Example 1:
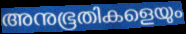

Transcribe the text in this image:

അനുഭൂതികളെയും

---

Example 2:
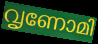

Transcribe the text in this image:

വൃണോമി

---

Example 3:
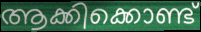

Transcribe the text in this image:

ആക്കിക്കൊണ്ട്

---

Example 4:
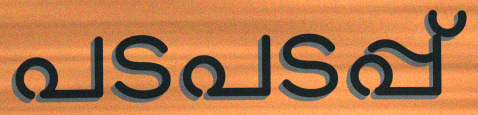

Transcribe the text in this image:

പടപടപ്പ്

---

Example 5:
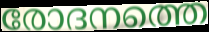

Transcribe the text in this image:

രോദനത്തെ